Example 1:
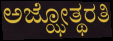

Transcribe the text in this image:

ಅಜ್ಝೋತ್ಥರತಿ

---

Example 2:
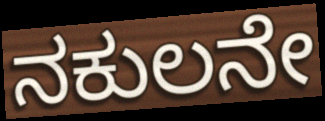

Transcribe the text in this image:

ನಕುಲನೇ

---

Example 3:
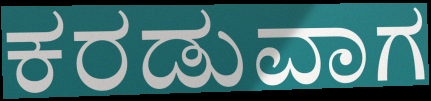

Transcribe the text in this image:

ಕರಡುವಾಗ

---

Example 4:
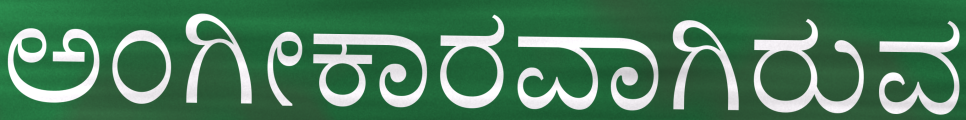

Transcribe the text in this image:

ಅಂಗೀಕಾರವಾಗಿರುವ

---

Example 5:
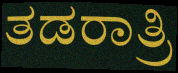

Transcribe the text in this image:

ತಡರಾತ್ರಿ